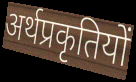
अर्थप्रकृतियों